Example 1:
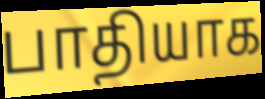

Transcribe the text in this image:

பாதியாக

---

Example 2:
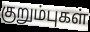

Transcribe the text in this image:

குறும்புகள்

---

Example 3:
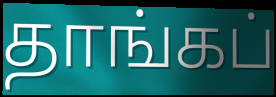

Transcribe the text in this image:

தாங்கப்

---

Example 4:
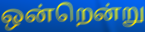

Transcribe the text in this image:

ஒன்றென்று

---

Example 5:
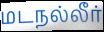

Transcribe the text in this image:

மடநல்லீர்